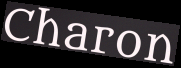
Charon